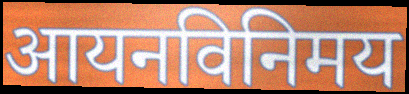
आयनविनिमय